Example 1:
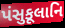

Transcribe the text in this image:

પંસુકૂલાનિ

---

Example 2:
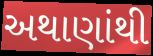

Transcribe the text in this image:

અથાણાંથી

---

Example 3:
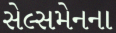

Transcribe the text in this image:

સેલ્સમેનના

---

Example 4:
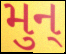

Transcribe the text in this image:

મુન્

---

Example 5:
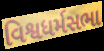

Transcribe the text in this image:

વિશ્વધર્મસભા